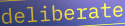
deliberate